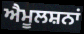
ਐਮੂਲਸ਼ਨਾਂ